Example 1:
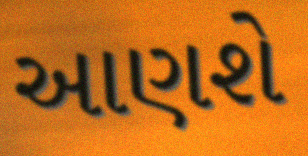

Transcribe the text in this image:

આણશે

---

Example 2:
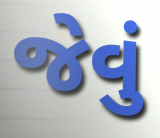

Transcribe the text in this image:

જેવું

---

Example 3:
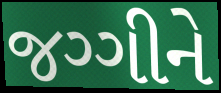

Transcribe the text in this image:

જગ્ગીને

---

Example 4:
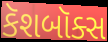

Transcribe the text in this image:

કૅશબૉક્સ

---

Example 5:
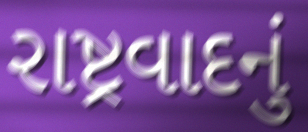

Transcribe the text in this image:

રાષ્ટ્રવાદનું